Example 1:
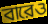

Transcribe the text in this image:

বারেও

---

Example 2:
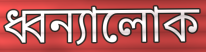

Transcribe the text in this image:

ধ্বন্যালোক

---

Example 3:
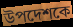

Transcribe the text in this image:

উপদেশকে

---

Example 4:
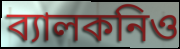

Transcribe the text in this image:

ব্যালকনিও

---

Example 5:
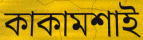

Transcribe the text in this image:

কাকামশাই